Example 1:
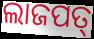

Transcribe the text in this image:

ଲାଜପତ୍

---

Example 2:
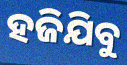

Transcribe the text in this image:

ହଜିଯିବୁ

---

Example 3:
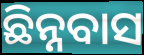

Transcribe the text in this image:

ଛିନ୍ନବାସ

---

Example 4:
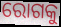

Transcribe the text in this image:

ରୋଗକୁ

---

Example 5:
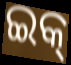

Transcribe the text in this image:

ଇକ୍